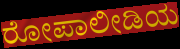
ರೋಪಾಲೀಡಿಯ